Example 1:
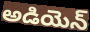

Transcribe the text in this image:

అడియెన్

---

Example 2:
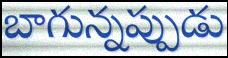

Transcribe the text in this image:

బాగున్నప్పుడు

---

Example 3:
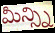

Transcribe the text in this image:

మీన్స్ని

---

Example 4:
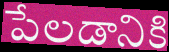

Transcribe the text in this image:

పేలడానికి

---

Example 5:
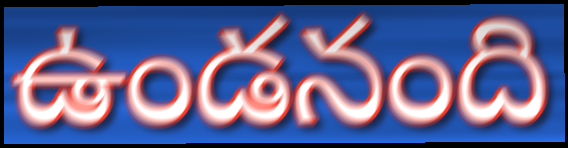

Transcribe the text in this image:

ఉండనంది